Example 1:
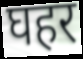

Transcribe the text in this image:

घहर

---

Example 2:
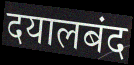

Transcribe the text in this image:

दयालबंद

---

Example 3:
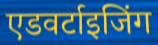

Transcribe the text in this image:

एडवर्टाइजिंग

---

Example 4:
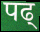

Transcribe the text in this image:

पढ्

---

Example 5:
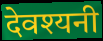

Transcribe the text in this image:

देवश्यनी